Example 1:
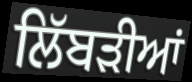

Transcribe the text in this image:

ਲਿੱਬੜੀਆਂ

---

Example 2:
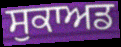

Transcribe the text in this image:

ਸੁਕਾਅਡ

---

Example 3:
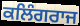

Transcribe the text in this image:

ਕਲਿੰਗਰਾਜ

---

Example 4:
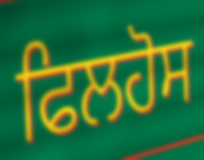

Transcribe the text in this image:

ਫਿਲਹੋਸ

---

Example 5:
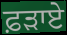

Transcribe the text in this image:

ਫ਼ੜਾਏ